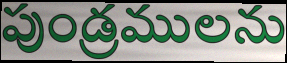
పుండ్రములను